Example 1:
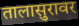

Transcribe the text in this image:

तालासुरावर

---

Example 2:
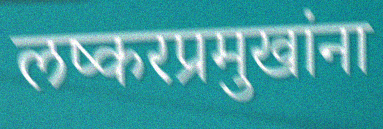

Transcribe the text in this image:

लष्करप्रमुखांना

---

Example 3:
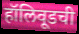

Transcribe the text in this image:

हॉलिवूडची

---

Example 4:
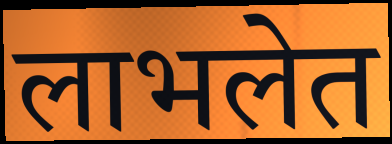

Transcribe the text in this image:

लाभलेत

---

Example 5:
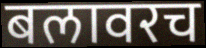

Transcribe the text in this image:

बलावरच